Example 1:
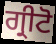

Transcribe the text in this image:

ਗ੍ਰੀਟੋ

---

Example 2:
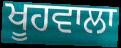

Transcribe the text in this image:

ਖੂਹਵਾਲਾ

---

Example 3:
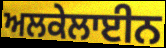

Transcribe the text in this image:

ਅਲਕੇਲਾਈਨ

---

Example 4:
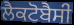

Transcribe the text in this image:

ਲੈਕਟੋਬੈਸੀ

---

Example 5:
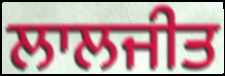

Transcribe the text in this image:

ਲਾਲਜੀਤ